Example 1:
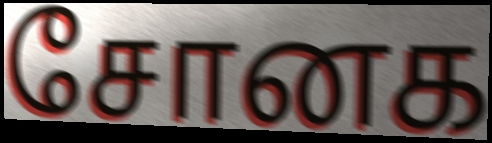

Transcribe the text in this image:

சோனக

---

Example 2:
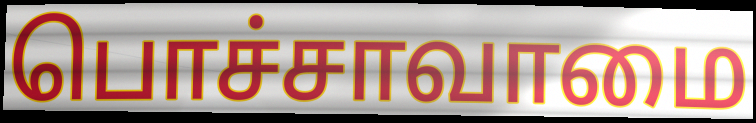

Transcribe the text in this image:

பொச்சாவாமை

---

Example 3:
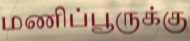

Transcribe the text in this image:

மணிப்பூருக்கு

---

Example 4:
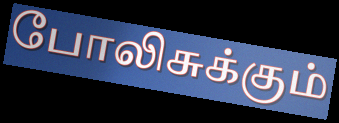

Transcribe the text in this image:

போலிசுக்கும்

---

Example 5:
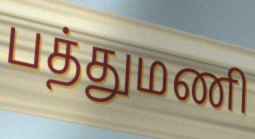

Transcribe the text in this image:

பத்துமணி